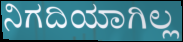
ನಿಗದಿಯಾಗಿಲ್ಲ